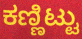
ಕಣ್ಣಿಟ್ಟು